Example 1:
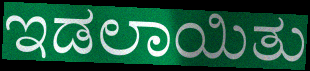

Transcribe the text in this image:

ಇಡಲಾಯಿತು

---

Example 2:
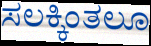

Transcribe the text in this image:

ಸಲಕ್ಕಿಂತಲೂ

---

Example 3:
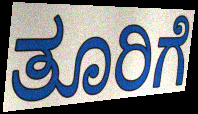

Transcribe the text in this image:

ತೂರಿಗೆ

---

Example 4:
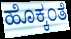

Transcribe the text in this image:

ಹೊಕ್ಕಂತೆ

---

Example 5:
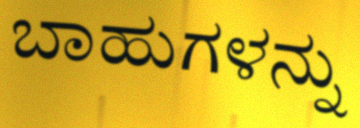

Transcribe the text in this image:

ಬಾಹುಗಳನ್ನು